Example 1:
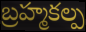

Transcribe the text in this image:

బ్రహ్మకల్ప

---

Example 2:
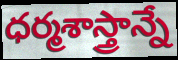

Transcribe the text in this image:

ధర్మశాస్త్రాన్నే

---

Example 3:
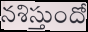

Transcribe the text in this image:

నశిస్తుందో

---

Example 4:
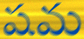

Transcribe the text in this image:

షమ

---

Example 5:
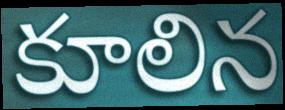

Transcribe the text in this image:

కూలిన